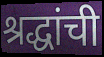
श्रद्धांची